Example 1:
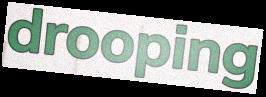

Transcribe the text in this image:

drooping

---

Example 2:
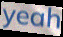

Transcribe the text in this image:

yeah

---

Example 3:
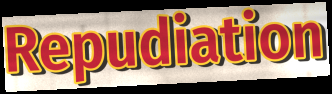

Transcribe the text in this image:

Repudiation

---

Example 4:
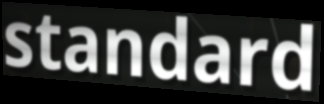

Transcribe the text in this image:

standard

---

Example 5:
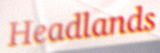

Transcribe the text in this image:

Headlands